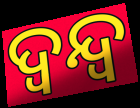
ଦ୍ବନ୍ଦ୍ବ